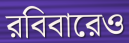
রবিবারেও